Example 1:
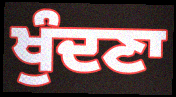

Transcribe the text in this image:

ਖੁੰਦਣਾ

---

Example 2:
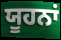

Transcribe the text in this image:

ਯੂਹਨਾਂ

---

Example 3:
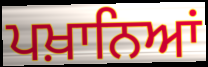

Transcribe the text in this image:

ਪਖ਼ਾਨਿਆਂ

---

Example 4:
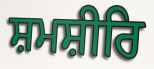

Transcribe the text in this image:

ਸ਼ਮਸ਼ੀਰਿ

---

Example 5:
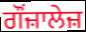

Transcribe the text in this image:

ਗੌਂਜ਼ਾਲੇਜ਼